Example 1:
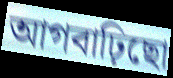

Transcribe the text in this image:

আগবাঢ়িছো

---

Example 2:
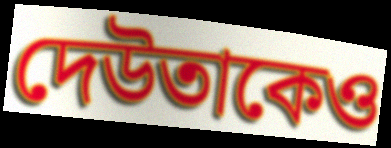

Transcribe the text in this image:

দেউতাকেও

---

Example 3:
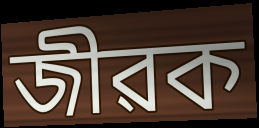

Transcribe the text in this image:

জীৱক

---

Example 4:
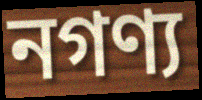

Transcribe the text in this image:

নগণ্য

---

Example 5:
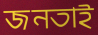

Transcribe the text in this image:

জনতাই